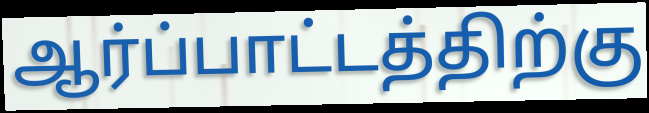
ஆர்ப்பாட்டத்திற்கு